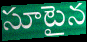
సూటైన